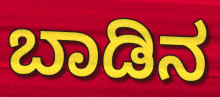
ಬಾಡಿನ